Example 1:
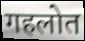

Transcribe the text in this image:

गहलोत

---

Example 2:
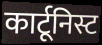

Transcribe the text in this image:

कार्टूनिस्ट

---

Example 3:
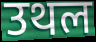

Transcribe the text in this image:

उथल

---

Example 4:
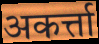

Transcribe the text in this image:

अकर्त्ता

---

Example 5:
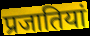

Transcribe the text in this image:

प्रजातियां